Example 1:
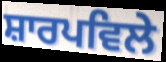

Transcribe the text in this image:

ਸ਼ਾਰਪਵਿਲੇ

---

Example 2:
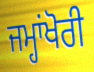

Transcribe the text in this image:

ਜਮ੍ਹਾਂਖੋਰੀ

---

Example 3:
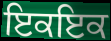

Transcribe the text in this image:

ਇਕਇਕ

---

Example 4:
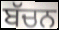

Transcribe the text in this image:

ਬੱਚਨ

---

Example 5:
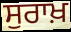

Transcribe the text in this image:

ਸੁਰਾਖ਼